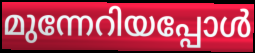
മുന്നേറിയപ്പോൾ